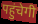
पहुंचेगी